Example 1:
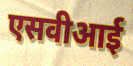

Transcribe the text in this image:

एसवीआई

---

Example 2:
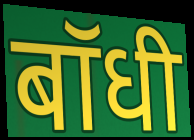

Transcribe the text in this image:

बॉधी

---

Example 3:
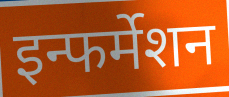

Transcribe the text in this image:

इन्फर्मेशन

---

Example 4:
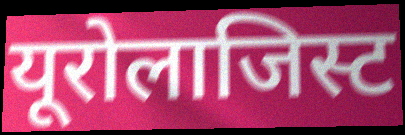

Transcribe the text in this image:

यूरोलाजिस्ट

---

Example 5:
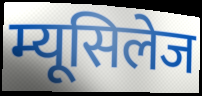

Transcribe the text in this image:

म्यूसिलेज